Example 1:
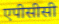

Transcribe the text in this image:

एपीसीसी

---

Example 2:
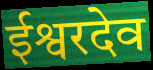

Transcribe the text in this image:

ईश्वरदेव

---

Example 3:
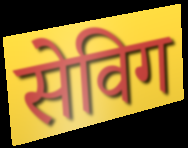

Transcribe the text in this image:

सेविग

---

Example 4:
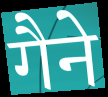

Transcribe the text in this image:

गैने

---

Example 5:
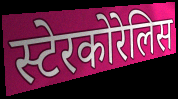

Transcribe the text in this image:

स्टेरकोरेलिस